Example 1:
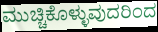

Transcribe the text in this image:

ಮುಚ್ಚಿಕೊಳ್ಳುವುದರಿಂದ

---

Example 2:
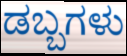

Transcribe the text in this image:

ಡಬ್ಬಗಳು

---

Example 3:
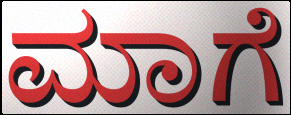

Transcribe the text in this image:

ಮಾಗೆ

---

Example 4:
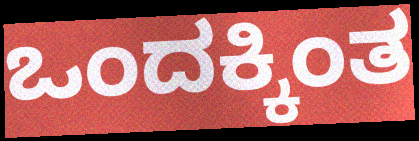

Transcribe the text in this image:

ಒಂದಕ್ಕಿಂತ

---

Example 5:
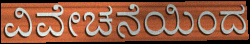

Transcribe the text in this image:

ವಿವೇಚನೆಯಿಂದ